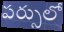
పర్సులో